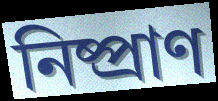
নিষ্প্রাণ